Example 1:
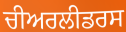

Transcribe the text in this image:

ਚੀਅਰਲੀਡਰਸ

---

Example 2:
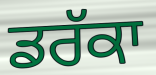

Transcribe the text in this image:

ਡਰੱਕਾ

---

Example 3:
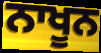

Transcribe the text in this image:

ਨਾਖੂਨ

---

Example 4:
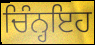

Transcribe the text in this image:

ਚਿੰਨ੍ਹਇਹ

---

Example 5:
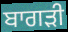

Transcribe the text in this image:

ਬਾਗੜੀ